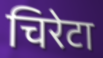
चिरेटा